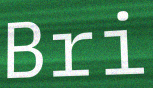
Bri